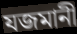
যজমানী